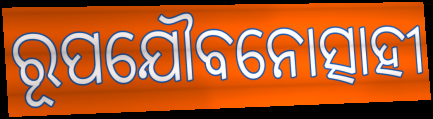
ରୂପଯୌବନୋତ୍ସାହୀ